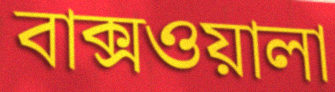
বাক্সওয়ালা